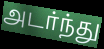
அடர்ந்து